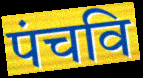
पंचवि